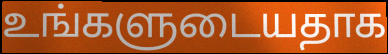
உங்களுடையதாக